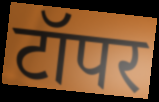
टॉपर